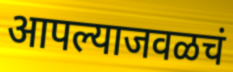
आपल्याजवळचं